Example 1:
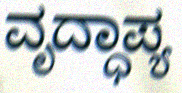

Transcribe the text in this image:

ವೃದ್ಧಾಪ್ಯ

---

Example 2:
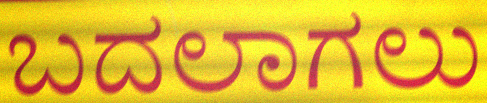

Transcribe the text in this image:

ಬದಲಾಗಲು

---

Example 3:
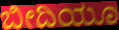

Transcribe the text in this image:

ಬೀದಿಯೂ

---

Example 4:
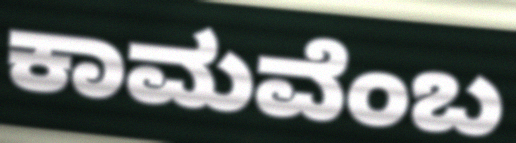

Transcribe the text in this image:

ಕಾಮವೆಂಬ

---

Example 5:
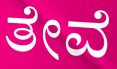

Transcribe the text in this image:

ತೇವೆ